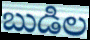
బుడిల